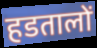
हडतालों